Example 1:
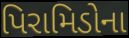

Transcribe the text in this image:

પિરામિડોના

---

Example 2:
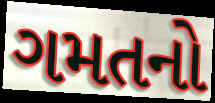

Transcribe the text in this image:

ગમતનો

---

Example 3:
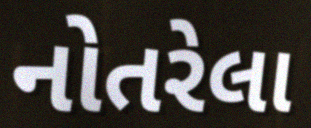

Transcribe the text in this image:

નોતરેલા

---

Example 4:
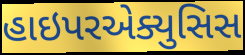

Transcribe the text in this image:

હાઇપરએક્યુસિસ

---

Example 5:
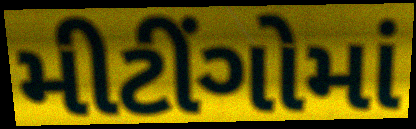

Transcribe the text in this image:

મીટીંગોમાં